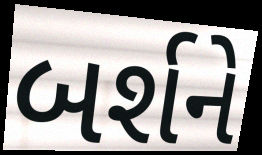
બર્શને